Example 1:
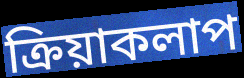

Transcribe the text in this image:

ক্রিয়াকলাপ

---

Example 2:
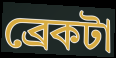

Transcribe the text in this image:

ব্রেকটা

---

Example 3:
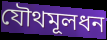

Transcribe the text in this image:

যৌথমূলধন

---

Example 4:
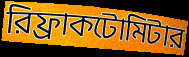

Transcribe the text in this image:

রিফ্রাকটোমিটার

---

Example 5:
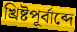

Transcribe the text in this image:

খ্রিষ্টপূর্বাব্দে